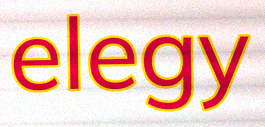
elegy